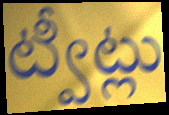
ట్వీట్లు